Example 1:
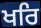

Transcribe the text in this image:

ਖਰਿ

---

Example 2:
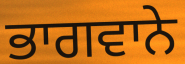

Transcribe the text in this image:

ਭਾਗਵਾਨੇ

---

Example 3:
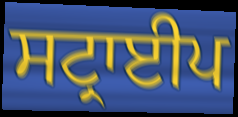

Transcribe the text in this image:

ਸਟ੍ਰਾਈਪ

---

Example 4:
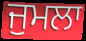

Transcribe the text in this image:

ਜੁਮਲਾ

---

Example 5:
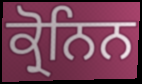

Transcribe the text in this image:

ਕ੍ਰੋਨਿਨ